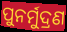
ପୁନର୍ମୁଦ୍ରଣ